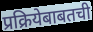
प्रक्रियेबाबतची